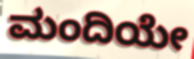
ಮಂದಿಯೇ